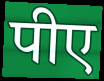
पीए